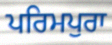
ਪਰਿਮਪੁਰਾ